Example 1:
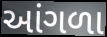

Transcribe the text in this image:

આંગળા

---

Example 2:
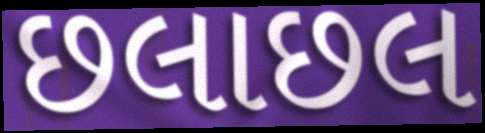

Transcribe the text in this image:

છલાછલ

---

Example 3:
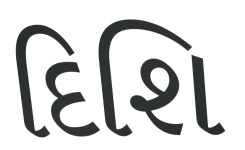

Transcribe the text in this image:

દિશિ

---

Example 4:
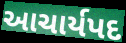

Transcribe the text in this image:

આચાર્યપદ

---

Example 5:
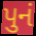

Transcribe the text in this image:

પુનં